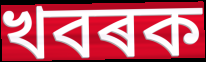
খবৰক